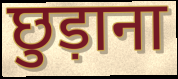
छुड़ाना